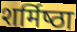
शर्मिष्‍ठा